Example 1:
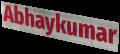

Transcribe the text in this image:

Abhaykumar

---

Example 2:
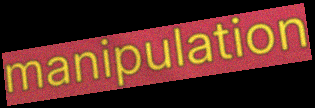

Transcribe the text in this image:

manipulation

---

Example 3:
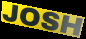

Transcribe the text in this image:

JOSH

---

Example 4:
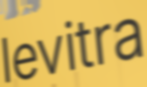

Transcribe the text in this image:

levitra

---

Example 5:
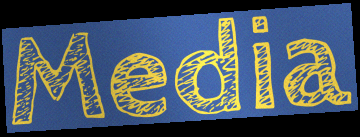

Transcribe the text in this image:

Media